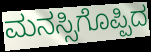
ಮನಸ್ಸಿಗೊಪ್ಪಿದ